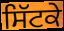
ਸਿੱਟਕੇ